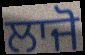
ਲਾਜੋ